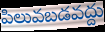
పిలువబడవద్దు